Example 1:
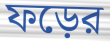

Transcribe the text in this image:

ফড়ের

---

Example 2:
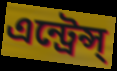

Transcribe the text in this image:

এন্ট্রেন্স্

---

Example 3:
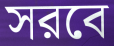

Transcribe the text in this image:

সরবে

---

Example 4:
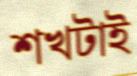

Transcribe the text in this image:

শখটাই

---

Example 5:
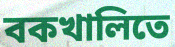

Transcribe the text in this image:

বকখালিতে